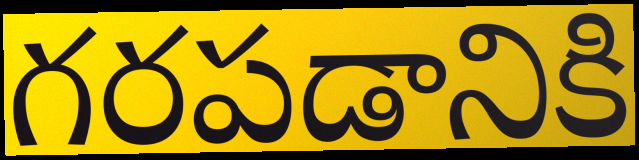
గరపడానికి